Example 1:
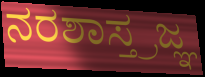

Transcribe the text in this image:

ನರಶಾಸ್ತ್ರಜ್ಞ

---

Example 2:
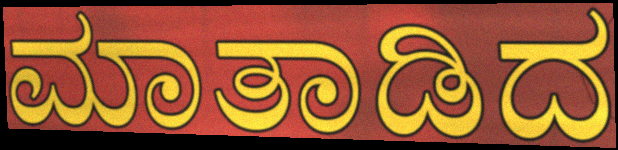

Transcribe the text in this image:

ಮಾತಾಡಿದ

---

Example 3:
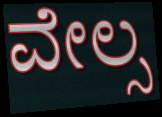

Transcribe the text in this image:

ವೇಲ್ಸ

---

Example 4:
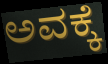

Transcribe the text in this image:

ಅವಕ್ಕೆ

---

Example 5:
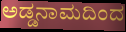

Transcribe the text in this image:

ಅಡ್ಡನಾಮದಿಂದ